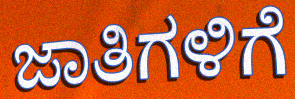
ಜಾತಿಗಳಿಗೆ